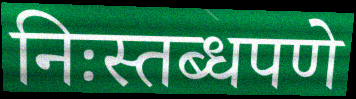
निःस्तब्धपणे